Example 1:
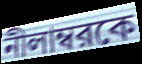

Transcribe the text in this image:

নীলাম্বরকে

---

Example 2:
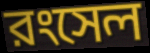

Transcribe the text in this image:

রংসেল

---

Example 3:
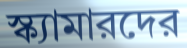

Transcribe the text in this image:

স্ক্যামারদের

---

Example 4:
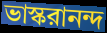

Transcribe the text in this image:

ভাস্করানন্দ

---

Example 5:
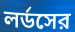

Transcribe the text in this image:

লর্ডসের